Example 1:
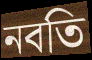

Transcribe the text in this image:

নবতি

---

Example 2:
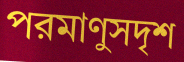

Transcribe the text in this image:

পরমাণুসদৃশ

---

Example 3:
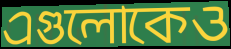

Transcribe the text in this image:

এগুলোকেও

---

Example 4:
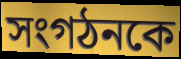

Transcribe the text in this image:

সংগঠনকে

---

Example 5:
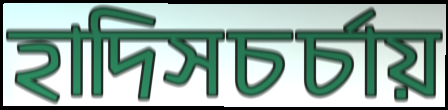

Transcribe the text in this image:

হাদিসচর্চায়